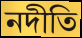
নদীতি